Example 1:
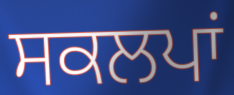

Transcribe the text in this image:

ਸਕਲਪਾਂ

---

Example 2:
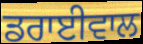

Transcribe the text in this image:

ਡਰਾਈਵਾਲ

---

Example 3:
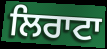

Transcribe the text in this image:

ਲਿਰਾਟਾ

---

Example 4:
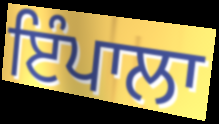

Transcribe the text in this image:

ਇੰਪਾਲਾ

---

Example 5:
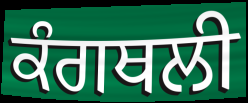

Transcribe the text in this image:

ਕੰਗਥਲੀ